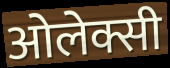
ओलेक्सी